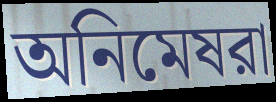
অনিমেষরা